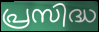
പ്രസിദ്ധ